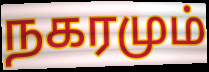
நகரமும்